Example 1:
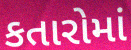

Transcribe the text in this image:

કતારોમાં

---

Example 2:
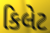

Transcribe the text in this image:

કિલેટ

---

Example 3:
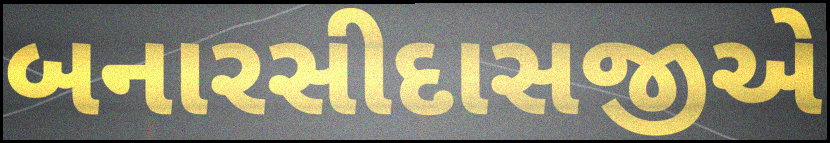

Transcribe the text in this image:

બનારસીદાસજીએ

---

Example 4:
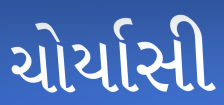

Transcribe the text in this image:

ચોર્યાસી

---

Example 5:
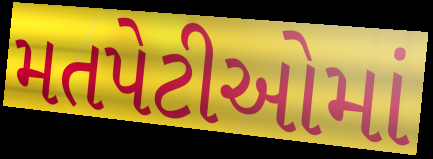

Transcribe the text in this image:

મતપેટીઓમાં